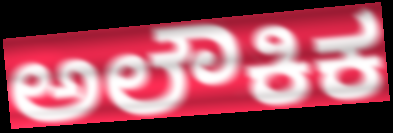
ಅಲೌಕಿಕ